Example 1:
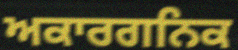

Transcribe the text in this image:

ਅਕਾਰਗਨਿਕ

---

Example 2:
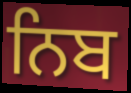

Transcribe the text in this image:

ਨਿਬ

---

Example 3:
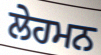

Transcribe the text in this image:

ਲੇਹਮਨ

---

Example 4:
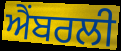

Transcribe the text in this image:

ਐਂਬਰਲੀ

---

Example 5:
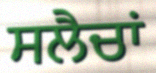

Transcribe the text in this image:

ਸਲੈਚਾਂ